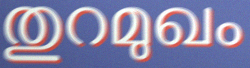
തുറമുഖം